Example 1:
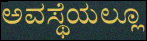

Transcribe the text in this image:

ಅವಸ್ಥೆಯಲ್ಲೂ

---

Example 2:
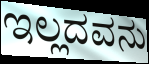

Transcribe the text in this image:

ಇಲ್ಲದವನು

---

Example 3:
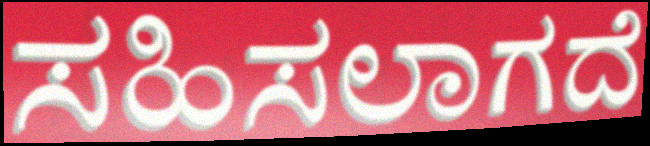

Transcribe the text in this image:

ಸಹಿಸಲಾಗದೆ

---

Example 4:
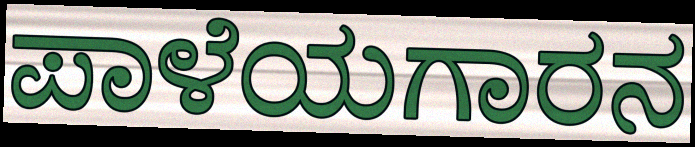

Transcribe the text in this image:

ಪಾಳೆಯಗಾರನ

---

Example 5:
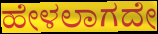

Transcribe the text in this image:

ಹೇಳಲಾಗದೇ